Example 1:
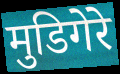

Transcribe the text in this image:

मुडिगेरे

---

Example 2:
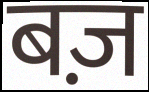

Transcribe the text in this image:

बज़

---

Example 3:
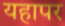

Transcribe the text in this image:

यहापर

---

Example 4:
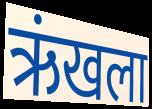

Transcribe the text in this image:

ऋंखला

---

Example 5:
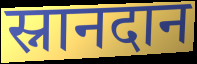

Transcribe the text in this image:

स्नानदान